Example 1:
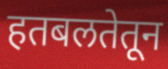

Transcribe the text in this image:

हतबलतेतून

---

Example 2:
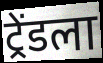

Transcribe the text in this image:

ट्रेंडला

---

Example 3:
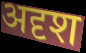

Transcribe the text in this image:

अदृश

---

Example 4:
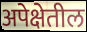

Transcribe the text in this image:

अपेक्षेतील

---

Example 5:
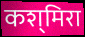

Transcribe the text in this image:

कश्मिरा